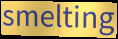
smelting